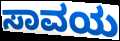
ಸಾವಯ